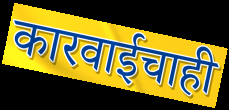
कारवाईचाही